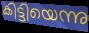
കിട്ടിയെന്നു